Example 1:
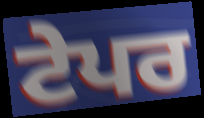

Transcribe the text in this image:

ਟੇਪਰ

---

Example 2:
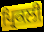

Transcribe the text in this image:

ਪ੍ਰਿਕਲੀ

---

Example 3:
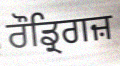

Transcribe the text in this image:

ਰੌਡ੍ਰਿਗਜ਼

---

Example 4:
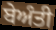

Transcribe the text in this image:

ਬੇਅੰਤੀ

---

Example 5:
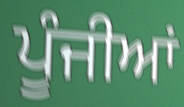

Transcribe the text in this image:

ਪੂੰਜੀਆਂ